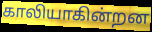
காலியாகின்றன